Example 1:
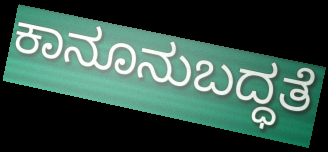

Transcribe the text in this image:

ಕಾನೂನುಬದ್ಧತೆ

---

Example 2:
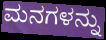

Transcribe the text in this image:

ಮನಗಳನ್ನು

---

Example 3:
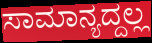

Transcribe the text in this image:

ಸಾಮಾನ್ಯದ್ದಲ್ಲ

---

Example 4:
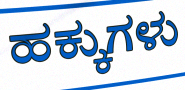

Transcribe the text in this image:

ಹಕ್ಕುಗಳು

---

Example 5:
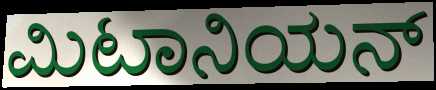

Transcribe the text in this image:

ಮಿಟಾನಿಯನ್